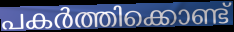
പകർത്തിക്കൊണ്ട്